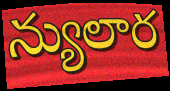
న్యులార